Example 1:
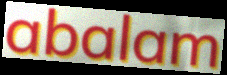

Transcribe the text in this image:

abalam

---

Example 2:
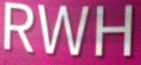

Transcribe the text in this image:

RWH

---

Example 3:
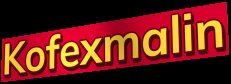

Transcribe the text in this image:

Kofexmalin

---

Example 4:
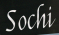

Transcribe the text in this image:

Sochi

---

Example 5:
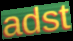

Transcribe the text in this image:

adst